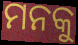
ମନକୁ